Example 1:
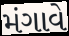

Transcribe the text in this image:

મંગાવે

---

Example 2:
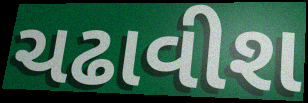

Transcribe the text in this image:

ચઢાવીશ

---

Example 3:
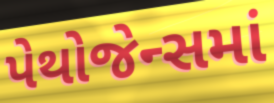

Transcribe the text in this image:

પેથોજેન્સમાં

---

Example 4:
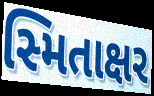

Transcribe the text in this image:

સ્મિતાક્ષર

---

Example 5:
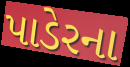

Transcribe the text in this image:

પાડેરના